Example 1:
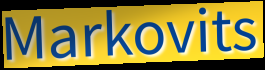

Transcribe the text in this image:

Markovits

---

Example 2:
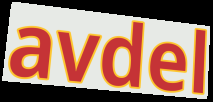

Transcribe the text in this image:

avdel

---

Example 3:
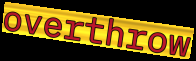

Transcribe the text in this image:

overthrow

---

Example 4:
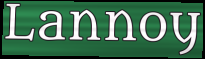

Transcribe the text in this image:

Lannoy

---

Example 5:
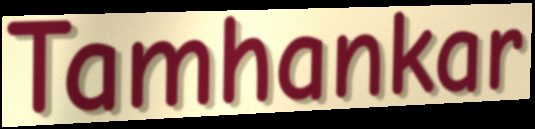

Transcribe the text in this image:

Tamhankar